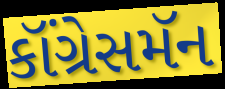
કૉંગ્રેસમૅન